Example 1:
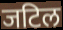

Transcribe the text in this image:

जटिल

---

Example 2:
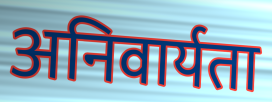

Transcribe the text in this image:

अनिवार्यता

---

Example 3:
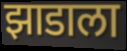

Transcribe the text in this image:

झाडाला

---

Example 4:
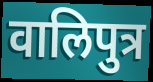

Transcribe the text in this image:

वालिपुत्र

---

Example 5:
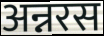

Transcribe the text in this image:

अन्नरस